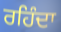
ਰਹਿੰਦਾ